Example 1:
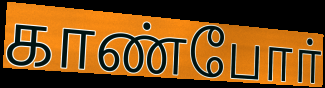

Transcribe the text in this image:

காண்போர்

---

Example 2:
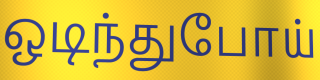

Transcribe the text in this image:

ஒடிந்துபோய்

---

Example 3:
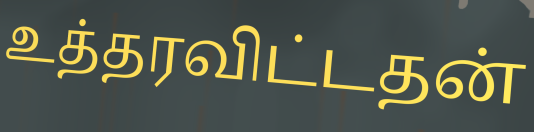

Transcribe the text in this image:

உத்தரவிட்டதன்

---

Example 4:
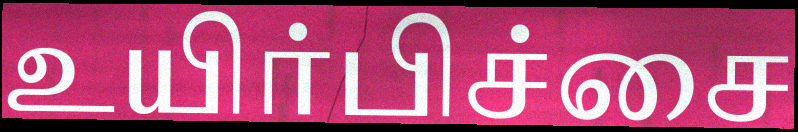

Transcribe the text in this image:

உயிர்பிச்சை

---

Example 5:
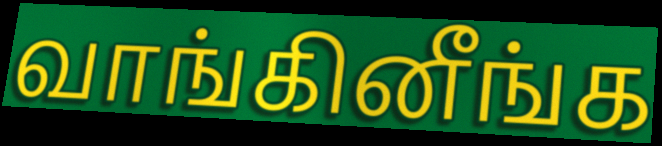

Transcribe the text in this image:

வாங்கினீங்க